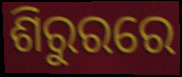
ଶିରୁରରେ